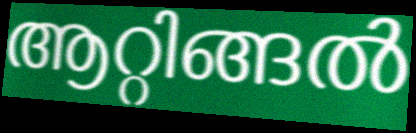
ആറ്റിങ്ങൽ